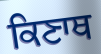
ਕਿਣਾਥ